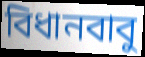
বিধানবাবু